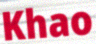
Khao